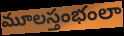
మూలస్తంభంలా